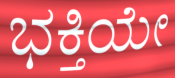
ಭಕ್ತಿಯೇ